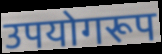
उपयोगरूप